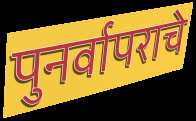
पुनर्वापराचे